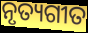
ନୃତ୍ୟଗୀତ